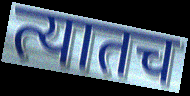
त्यातच